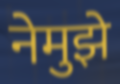
नेमुझे